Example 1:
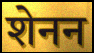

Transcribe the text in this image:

शेनन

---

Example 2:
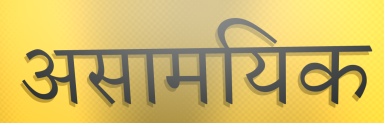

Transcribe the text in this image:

असामयिक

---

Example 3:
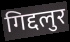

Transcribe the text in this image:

गिद्दलुर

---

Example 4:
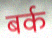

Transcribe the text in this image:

बर्क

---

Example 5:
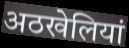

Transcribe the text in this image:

अठखेलियां